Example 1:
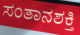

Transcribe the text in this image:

ಸಂತಾನಶಕ್ತಿ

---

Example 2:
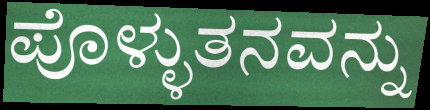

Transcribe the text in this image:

ಪೊಳ್ಳುತನವನ್ನು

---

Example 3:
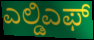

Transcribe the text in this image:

ಎಲ್ಡಿಎಫ್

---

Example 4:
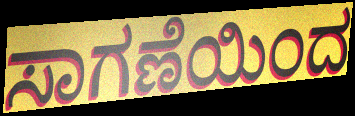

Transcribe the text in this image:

ಸಾಗಣೆಯಿಂದ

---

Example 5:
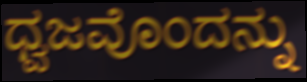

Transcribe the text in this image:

ಧ್ವಜವೊಂದನ್ನು